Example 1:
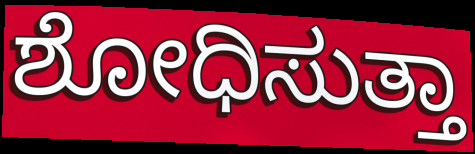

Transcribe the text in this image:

ಶೋಧಿಸುತ್ತಾ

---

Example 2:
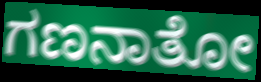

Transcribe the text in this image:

ಗಣನಾತೋ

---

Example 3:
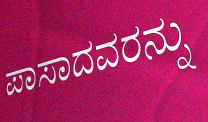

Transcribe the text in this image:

ಪಾಸಾದವರನ್ನು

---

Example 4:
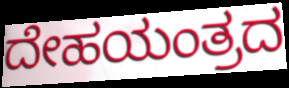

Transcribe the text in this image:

ದೇಹಯಂತ್ರದ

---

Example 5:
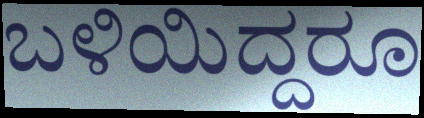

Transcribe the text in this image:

ಬಳಿಯಿದ್ದರೂ